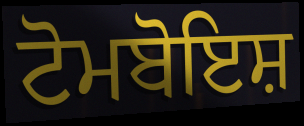
ਟੋਮਬੋਇਸ਼